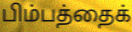
பிம்பத்தைக்